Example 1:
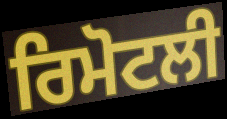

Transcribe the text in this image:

ਰਿਮੋਟਲੀ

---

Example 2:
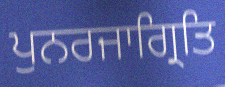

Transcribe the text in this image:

ਪੁਨਰਜਾਗ੍ਰਿਤਿ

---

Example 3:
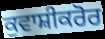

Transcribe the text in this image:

ਕੁਵਾਸ਼ੀਕਰੋਰ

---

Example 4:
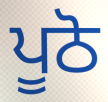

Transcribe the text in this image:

ਪੂਠੋ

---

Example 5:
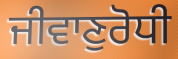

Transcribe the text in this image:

ਜੀਵਾਣੁਰੋਧੀ